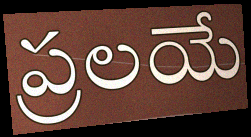
ప్రలయే